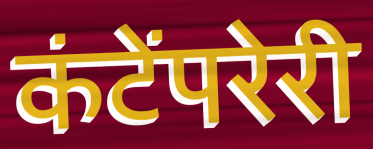
कंटेंपरेरी